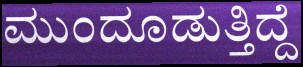
ಮುಂದೂಡುತ್ತಿದ್ದೆ